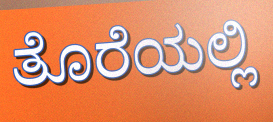
ತೊರೆಯಲ್ಲಿ